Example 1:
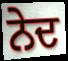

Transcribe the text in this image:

ਨੇਦ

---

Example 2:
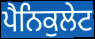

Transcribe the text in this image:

ਪੈਨਿਕੁਲੇਟ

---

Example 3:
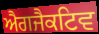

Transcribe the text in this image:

ਐਗਜੈਕਟਿਵ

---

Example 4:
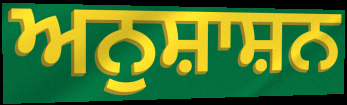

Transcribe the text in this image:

ਅਨੁਸ਼ਾਸ਼ਨ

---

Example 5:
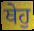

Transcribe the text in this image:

ਥੇਹੁ